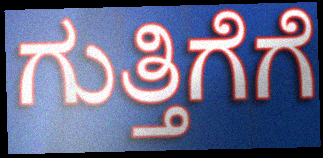
ಗುತ್ತಿಗೆಗೆ